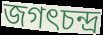
জগৎচন্দ্র